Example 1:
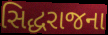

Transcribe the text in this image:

સિદ્ધરાજના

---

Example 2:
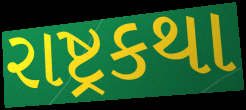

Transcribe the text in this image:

રાષ્ટ્રકથા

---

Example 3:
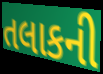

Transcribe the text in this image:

તલાકની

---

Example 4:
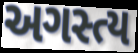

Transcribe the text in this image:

અગસ્ત્ય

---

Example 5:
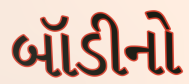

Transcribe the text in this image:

બૉડીનો